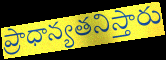
ప్రాధాన్యతనిస్తారు